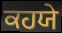
ਕਹਯੇ